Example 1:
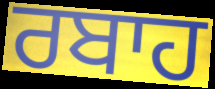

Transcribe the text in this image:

ਰਬਾਹ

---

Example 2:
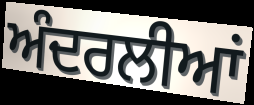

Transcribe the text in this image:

ਅੰਦਰਲੀਆਂ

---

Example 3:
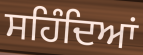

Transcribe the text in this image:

ਸਹਿੰਦਿਆਂ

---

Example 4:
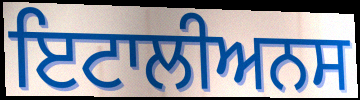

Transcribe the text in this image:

ਇਟਾਲੀਅਨਸ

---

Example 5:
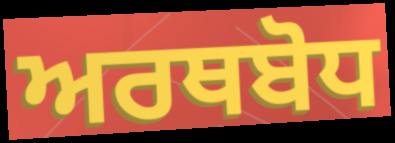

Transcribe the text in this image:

ਅਰਥਬੋਧ